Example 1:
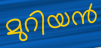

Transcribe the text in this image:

മുറിയൻ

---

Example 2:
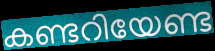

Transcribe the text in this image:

കണ്ടറിയേണ്ട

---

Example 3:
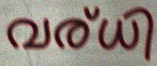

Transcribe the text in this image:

വര്ധി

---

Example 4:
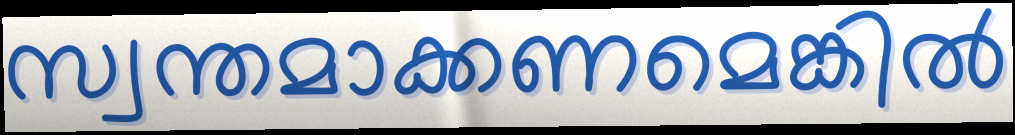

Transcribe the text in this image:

സ്വന്തമാക്കണമെങ്കിൽ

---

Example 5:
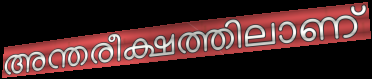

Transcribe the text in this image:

അന്തരീക്ഷത്തിലാണ്